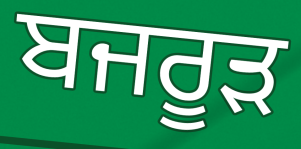
ਬਜਰੂੜ